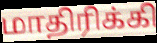
மாதிரிக்கி